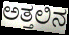
ಅತ್ತಲಿನ